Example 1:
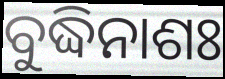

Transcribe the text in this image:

ବୁଦ୍ଧିନାଶଃ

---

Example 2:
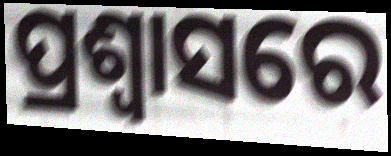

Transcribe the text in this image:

ପ୍ରଶ୍ଵାସରେ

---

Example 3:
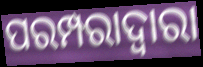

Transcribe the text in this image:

ପରମ୍ପରାଦ୍ବାରା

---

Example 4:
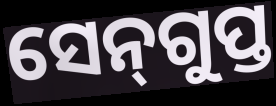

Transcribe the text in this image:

ସେନ୍‌ଗୁପ୍ତ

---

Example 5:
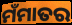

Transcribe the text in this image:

ମଁମାତର